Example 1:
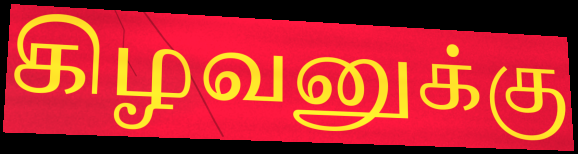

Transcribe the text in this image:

கிழவனுக்கு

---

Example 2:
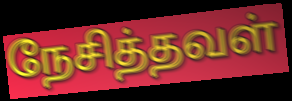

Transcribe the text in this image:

நேசித்தவள்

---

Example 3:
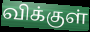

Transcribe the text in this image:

விக்குள்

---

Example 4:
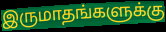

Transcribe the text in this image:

இருமாதங்களுக்கு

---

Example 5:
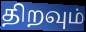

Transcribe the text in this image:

திறவும்